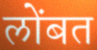
लोंबत